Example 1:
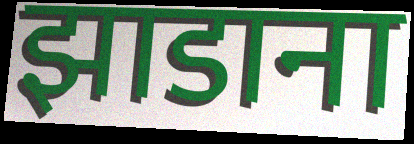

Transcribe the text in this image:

झाडाना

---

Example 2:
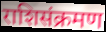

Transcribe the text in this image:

राशिसंक्रमण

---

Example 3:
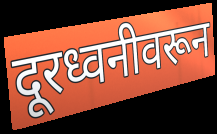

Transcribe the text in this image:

दूरध्वनीवरून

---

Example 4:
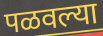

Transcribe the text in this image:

पळवल्या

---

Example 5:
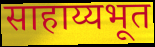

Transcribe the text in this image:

साहाय्यभूत